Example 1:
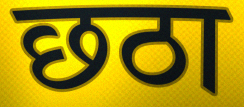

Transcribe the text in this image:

छठा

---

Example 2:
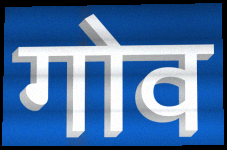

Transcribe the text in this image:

गोव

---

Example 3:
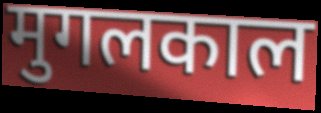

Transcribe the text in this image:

मुगलकाल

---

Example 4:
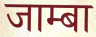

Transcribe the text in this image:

जाम्बा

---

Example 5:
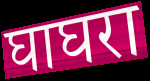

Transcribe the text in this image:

घाघरा